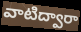
వాటిద్వారా